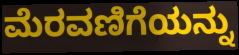
ಮೆರವಣಿಗೆಯನ್ನು